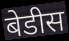
बेडीस